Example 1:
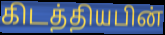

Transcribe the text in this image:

கிடத்தியபின்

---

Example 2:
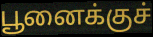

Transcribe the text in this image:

பூனைக்குச்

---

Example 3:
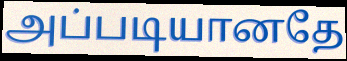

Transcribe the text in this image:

அப்படியானதே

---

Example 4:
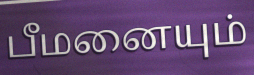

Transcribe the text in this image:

பீமனையும்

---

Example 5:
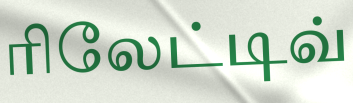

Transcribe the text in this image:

ரிலேட்டிவ்